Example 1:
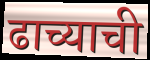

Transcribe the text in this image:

ढाच्याची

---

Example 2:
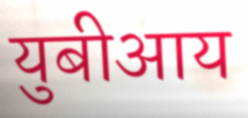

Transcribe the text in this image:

युबीआय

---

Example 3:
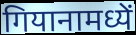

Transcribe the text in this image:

गियानामध्यें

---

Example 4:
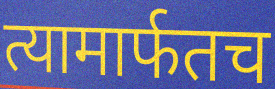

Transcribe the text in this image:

त्यामार्फतच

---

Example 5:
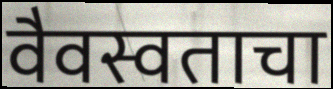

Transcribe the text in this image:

वैवस्वताचा